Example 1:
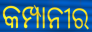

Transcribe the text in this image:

କମ୍ପାନୀର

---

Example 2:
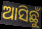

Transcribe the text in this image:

ଆସିଛୁଁ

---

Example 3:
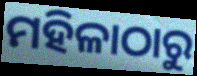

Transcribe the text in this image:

ମହିଳାଠାରୁ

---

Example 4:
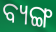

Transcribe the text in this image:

ବ୍ୟଙ୍ଗ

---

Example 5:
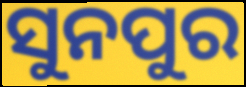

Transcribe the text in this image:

ସୁନପୁର